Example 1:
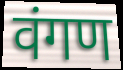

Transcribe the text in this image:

वंगण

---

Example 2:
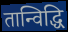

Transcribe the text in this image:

तान्विद्धि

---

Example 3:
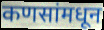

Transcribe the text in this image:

कणसांमधून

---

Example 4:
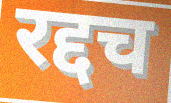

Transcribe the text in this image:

रद्दच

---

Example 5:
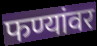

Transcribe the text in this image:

फण्यांवर